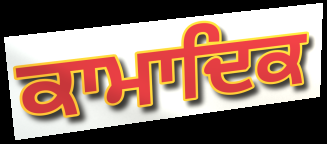
ਕਾਮਾਦਿਕ